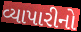
વ્યાપારીનો